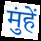
मुंहें